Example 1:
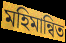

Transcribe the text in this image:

মহিমান্বিত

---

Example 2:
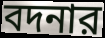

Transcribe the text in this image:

বদনার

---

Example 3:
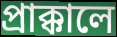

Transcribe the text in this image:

প্রাক্কালে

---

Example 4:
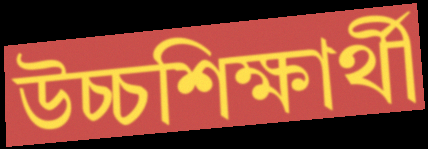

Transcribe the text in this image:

উচ্চশিক্ষার্থী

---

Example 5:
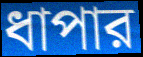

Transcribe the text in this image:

ধাপার